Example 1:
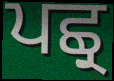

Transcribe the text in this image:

ਪਛ੍ਰ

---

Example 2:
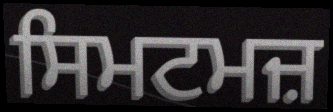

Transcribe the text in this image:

ਸਿਮਟਮਜ਼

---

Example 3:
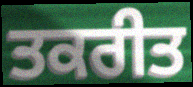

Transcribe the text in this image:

ਤਕਰੀਤ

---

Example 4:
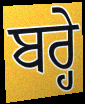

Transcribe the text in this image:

ਬਰ੍ਹੇ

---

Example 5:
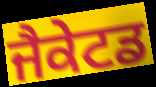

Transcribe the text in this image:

ਜੈਕੇਟਡ